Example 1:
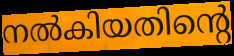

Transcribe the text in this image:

നൽകിയതിന്റെ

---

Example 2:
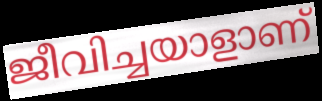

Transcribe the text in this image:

ജീവിച്ചയാളാണ്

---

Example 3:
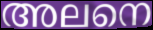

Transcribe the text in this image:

അലനെ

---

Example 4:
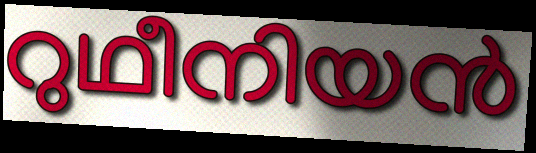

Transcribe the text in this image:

റുഥീനിയൻ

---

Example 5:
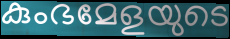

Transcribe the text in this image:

കുംഭമേളയുടെ